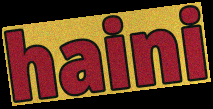
haini